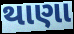
થાણા